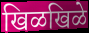
खिळखिळे